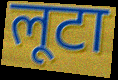
लूटा